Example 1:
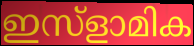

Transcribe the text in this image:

ഇസ്ളാമിക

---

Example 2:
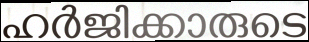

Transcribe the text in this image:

ഹർജിക്കാരുടെ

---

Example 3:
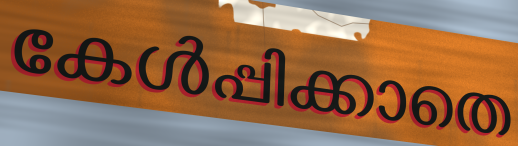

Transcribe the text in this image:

കേൾപ്പിക്കാതെ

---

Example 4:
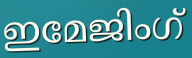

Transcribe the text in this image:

ഇമേജിംഗ്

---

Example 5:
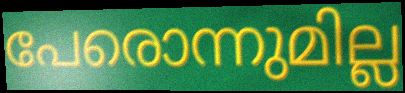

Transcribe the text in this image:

പേരൊന്നുമില്ല